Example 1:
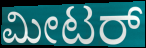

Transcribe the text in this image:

ಮೀಟರ್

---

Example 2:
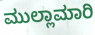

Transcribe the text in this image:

ಮುಲ್ಲಾಮಾರಿ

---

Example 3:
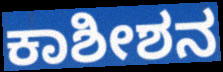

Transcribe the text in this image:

ಕಾಶೀಶನ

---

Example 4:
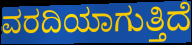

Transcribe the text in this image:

ವರದಿಯಾಗುತ್ತಿದೆ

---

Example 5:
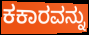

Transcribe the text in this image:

ಕಕಾರವನ್ನು